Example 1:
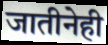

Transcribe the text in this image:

जातीनेही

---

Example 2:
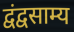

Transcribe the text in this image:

द्वंद्वसाम्य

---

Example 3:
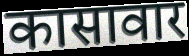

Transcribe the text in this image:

कासावार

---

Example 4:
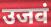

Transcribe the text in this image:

उजवं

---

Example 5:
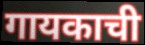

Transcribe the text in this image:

गायकाची